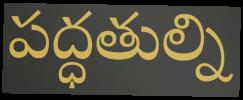
పద్ధతుల్ని